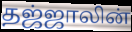
தஜ்ஜாலின்